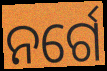
ନର୍ଗେ